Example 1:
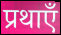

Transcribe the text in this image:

प्रथाएँ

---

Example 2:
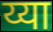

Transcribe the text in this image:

य्या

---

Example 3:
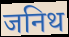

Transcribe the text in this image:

जनिथ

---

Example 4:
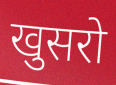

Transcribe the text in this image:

खुसरो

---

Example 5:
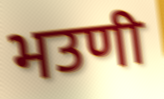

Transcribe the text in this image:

भउणी